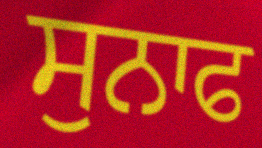
ਸੁਨਾਫ